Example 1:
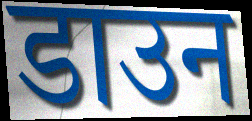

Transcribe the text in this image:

डाउन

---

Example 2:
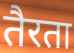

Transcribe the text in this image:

तैरता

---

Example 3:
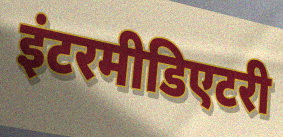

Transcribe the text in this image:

इंटरमीडिएटरी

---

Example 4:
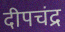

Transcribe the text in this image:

दीपचंद्र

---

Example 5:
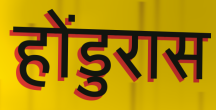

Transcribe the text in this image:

होंडुरास